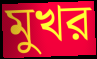
মুখর